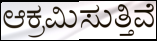
ಆಕ್ರಮಿಸುತ್ತಿವೆ